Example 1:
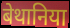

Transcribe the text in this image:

बेथानिया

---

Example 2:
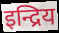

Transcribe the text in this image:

इन्द्रिय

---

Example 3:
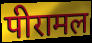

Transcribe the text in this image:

पीरामल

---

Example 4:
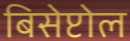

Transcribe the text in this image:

बिसेप्टोल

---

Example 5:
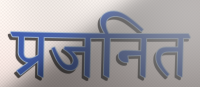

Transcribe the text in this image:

प्रजनित